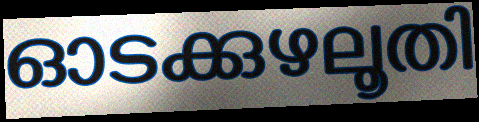
ഓടക്കുഴലൂതി